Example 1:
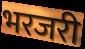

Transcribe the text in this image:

भरजरी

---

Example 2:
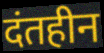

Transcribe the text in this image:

दंतहीन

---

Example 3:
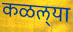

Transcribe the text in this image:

कळल्या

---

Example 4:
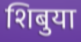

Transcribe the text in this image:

शिबुया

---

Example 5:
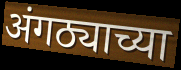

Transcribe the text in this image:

अंगठ्याच्या